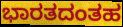
ಭಾರತದಂತಹ